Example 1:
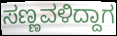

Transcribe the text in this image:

ಸಣ್ಣವಳಿದ್ದಾಗ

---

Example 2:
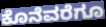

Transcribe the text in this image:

ಕೊನೆವರೆಗೂ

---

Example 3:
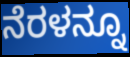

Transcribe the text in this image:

ನೆರಳನ್ನೂ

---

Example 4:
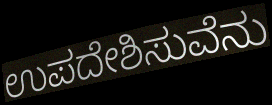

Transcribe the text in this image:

ಉಪದೇಶಿಸುವೆನು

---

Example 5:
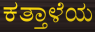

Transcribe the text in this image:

ಕತ್ತಾಳೆಯ